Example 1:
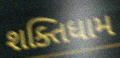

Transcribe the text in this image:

શક્તિધામ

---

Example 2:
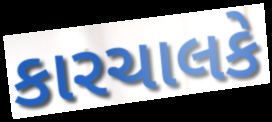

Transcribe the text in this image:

કારચાલકે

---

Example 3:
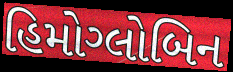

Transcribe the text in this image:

હિમોગ્લોબિન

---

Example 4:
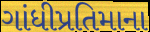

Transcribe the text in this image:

ગાંધીપ્રતિમાના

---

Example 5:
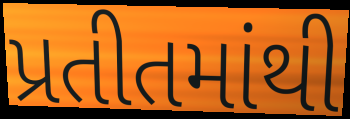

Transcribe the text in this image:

પ્રતીતમાંથી